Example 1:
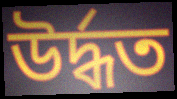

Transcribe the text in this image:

উৰ্দ্ধত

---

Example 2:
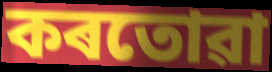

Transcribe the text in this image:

কৰতোৱা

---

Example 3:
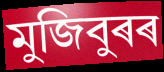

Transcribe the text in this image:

মুজিবুৰৰ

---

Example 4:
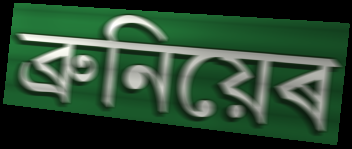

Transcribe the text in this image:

ব্ৰুনিয়েৰ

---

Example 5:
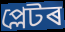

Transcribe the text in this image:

প্লেটৰ